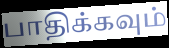
பாதிக்கவும்